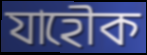
যাহৌক